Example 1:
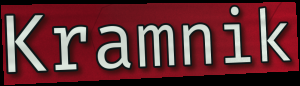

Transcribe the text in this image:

Kramnik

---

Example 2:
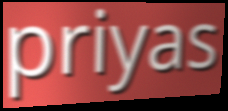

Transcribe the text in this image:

priyas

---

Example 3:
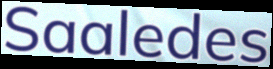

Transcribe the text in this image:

Saaledes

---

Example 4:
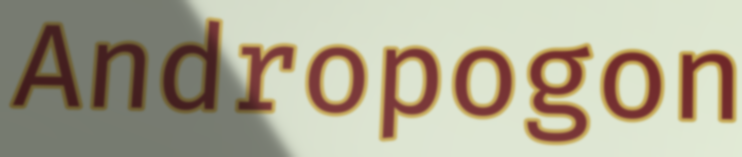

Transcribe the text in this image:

Andropogon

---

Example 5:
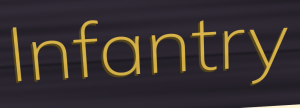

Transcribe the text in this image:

Infantry